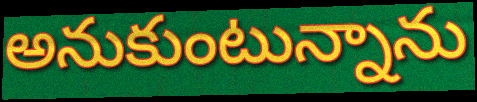
అనుకుంటున్నాను